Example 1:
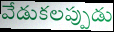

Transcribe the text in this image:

వేడుకలప్పుడు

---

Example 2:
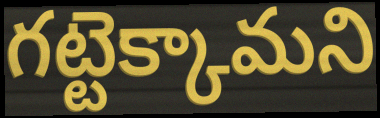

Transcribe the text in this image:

గట్టెక్కామని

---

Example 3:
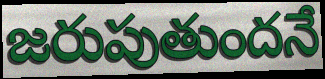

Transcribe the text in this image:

జరుపుతుందనే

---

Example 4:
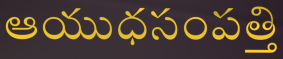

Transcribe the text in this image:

ఆయుధసంపత్తి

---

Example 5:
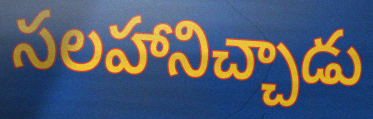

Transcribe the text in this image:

సలహానిచ్చాడు